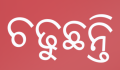
ଚଢୁଛନ୍ତି